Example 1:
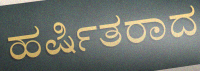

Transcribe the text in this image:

ಹರ್ಷಿತರಾದ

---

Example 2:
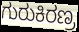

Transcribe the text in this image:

ಗುರುಕಿರಣ್ರ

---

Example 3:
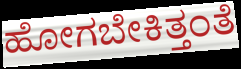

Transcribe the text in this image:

ಹೋಗಬೇಕಿತ್ತಂತೆ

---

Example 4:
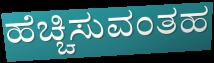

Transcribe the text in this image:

ಹೆಚ್ಚಿಸುವಂತಹ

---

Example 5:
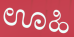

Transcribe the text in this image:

ಊಹಿ